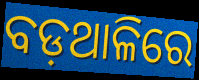
ବଡ଼ଥାଳିରେ